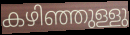
കഴിഞ്ഞുള്ളു